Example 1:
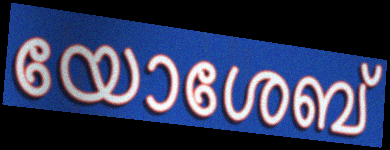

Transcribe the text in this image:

യോശേബ്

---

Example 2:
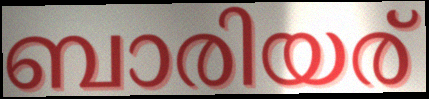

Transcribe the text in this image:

ബാരിയര്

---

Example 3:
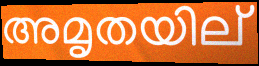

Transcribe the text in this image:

അമൃതയില്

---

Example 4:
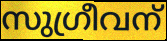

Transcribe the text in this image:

സുഗ്രീവന്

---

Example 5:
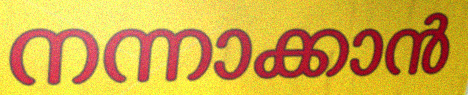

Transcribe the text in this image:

നന്നാക്കാൻ